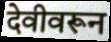
देवीवरून